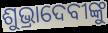
ଶୁଭ୍ରାଦେବୀଙ୍କୁ